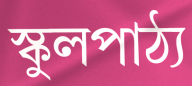
স্কুলপাঠ্য